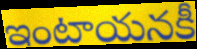
ఇంటాయనకీ